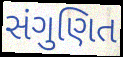
સંગુણિત